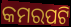
କମରପଟି